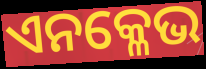
ଏନକ୍ଳେଭ